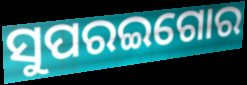
ସୁପରଇଗୋର